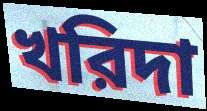
খরিদা